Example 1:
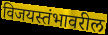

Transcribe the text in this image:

विजयस्तंभावरील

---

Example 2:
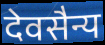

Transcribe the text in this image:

देवसैन्य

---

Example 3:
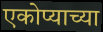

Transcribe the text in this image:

एकोप्याच्या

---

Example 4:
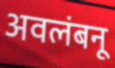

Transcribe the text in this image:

अवलंबनू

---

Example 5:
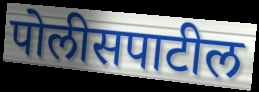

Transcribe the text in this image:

पोलीसपाटील